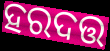
ହରଦତ୍ତ